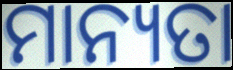
ମାନ୍ୟତା